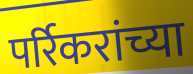
पर्रिकरांच्या